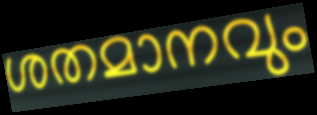
ശതമാനവും